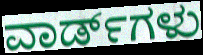
ವಾರ್ಡ್‌ಗಳು